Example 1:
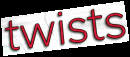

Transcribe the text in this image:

twists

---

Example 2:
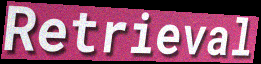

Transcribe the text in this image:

Retrieval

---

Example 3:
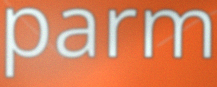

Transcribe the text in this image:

parm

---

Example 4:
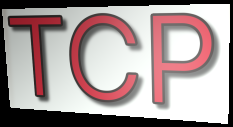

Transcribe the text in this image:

TCP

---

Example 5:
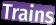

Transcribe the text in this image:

Trains